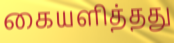
கையளித்தது